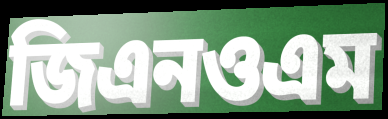
জিএনওএম